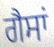
ਗੈਸਾਂ